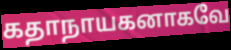
கதாநாயகனாகவே